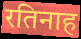
रतिनाह